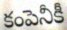
కంపెనీకీ